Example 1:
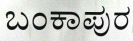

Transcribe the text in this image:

ಬಂಕಾಪುರ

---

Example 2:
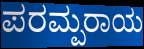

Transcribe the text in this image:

ಪರಮ್ಪರಾಯ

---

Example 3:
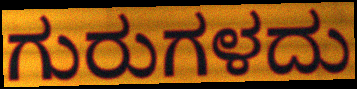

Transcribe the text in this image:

ಗುರುಗಳದು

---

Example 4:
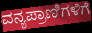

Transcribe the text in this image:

ವನ್ಯಪ್ರಾಣಿಗಳಿಗೆ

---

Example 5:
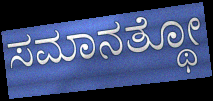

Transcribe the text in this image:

ಸಮಾನತ್ಥೋ